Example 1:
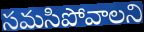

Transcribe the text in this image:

సమసిపోవాలని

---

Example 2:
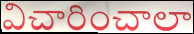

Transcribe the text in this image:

విచారించాలా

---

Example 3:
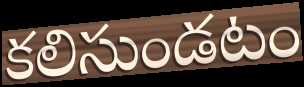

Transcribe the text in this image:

కలిసుండటం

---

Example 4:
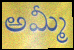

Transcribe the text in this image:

అమ్మీ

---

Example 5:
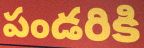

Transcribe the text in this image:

పండరికి